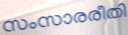
സംസാരരീതി